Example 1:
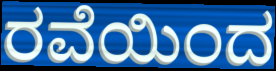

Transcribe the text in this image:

ರವೆಯಿಂದ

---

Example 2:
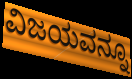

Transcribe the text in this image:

ವಿಜಯವನ್ನೂ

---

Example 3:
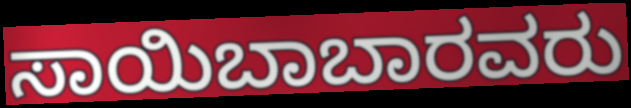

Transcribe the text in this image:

ಸಾಯಿಬಾಬಾರವರು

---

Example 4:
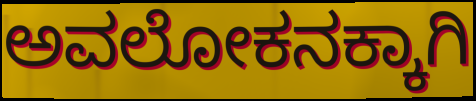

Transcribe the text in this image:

ಅವಲೋಕನಕ್ಕಾಗಿ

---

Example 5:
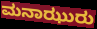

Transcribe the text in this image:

ಮನಾಝುರು